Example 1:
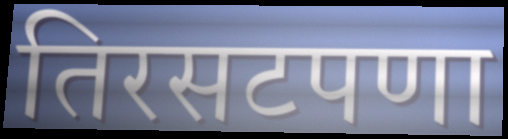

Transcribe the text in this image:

तिरसटपणा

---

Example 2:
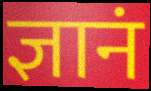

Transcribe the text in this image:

ज्ञानं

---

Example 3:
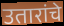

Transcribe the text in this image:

उतारांचे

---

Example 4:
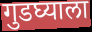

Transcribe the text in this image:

गुडघ्याला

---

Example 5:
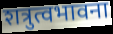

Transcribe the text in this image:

शत्रुत्वभावना